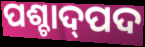
ପଶ୍ଚାଦ୍‍ପଦ